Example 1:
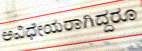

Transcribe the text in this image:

ಅವಿಧೇಯರಾಗಿದ್ದರೂ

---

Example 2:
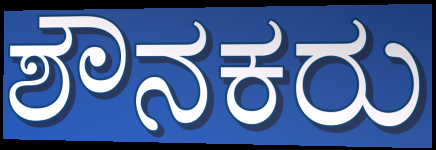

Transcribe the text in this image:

ಶೌನಕರು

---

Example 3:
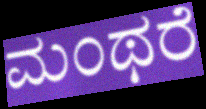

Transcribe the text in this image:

ಮಂಥರೆ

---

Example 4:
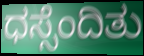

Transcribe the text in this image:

ಧಸ್ಸೆಂದಿತು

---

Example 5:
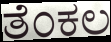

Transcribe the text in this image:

ತೆಂಕಲ